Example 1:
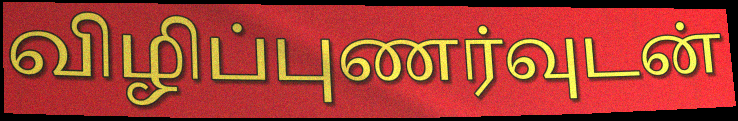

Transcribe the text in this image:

விழிப்புணர்வுடன்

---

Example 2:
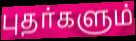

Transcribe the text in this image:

புதர்களும்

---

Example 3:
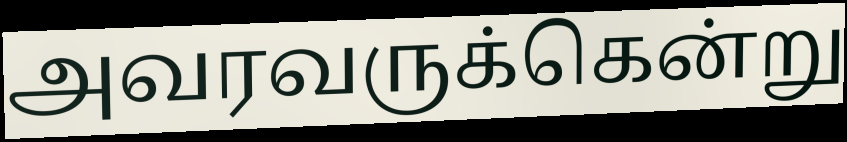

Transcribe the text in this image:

அவரவருக்கென்று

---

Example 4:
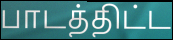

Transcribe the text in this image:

பாடத்திட்ட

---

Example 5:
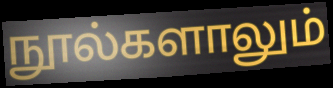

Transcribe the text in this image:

நூல்களாலும்